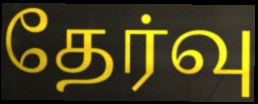
தேர்வு